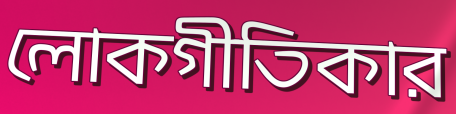
লোকগীতিকার